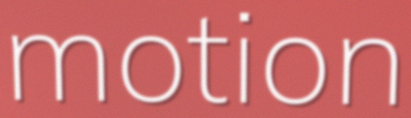
motion